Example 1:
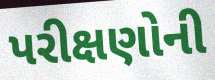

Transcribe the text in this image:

પરીક્ષણોની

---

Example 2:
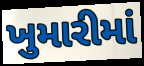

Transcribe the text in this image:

ખુમારીમાં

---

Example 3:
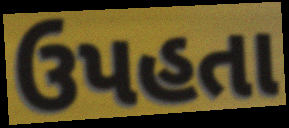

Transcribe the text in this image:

ઉપહતા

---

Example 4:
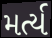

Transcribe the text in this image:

મર્ત્ય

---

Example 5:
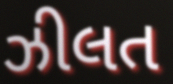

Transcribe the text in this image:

ઝીલત